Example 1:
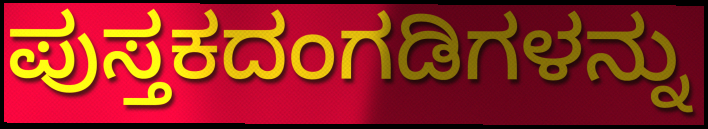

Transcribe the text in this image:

ಪುಸ್ತಕದಂಗಡಿಗಳನ್ನು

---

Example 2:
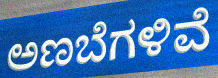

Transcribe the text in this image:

ಅಣಬೆಗಳಿವೆ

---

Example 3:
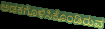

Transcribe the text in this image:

ಅಡಕಗೊಳಿಸಿಕೊಂಡಿರುವ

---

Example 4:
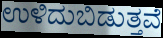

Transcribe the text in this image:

ಉಳಿದುಬಿಡುತ್ತವೆ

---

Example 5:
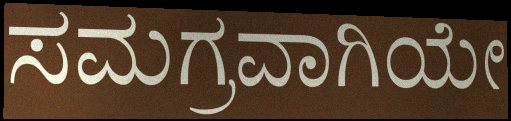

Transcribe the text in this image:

ಸಮಗ್ರವಾಗಿಯೇ